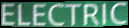
ELECTRIC